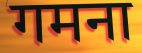
गमना